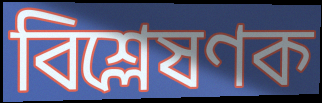
বিশ্লেষণক